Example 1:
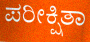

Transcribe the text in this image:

ಪರೀಕ್ಷಿತಾ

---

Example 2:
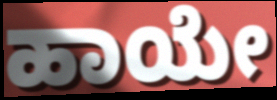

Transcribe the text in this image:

ಹಾಯೇ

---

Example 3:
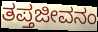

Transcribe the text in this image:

ತಪ್ತಜೀವನಂ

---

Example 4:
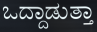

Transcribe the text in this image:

ಒದ್ದಾಡುತ್ತಾ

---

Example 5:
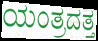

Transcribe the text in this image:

ಯಂತ್ರದತ್ತ